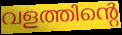
വളത്തിന്റെ